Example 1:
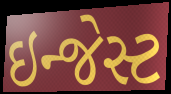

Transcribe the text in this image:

ઇન્જેસ્ટ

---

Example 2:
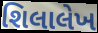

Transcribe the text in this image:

શિલાલેખ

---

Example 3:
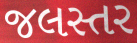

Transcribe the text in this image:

જલસ્તર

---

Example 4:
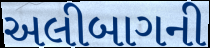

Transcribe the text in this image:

અલીબાગની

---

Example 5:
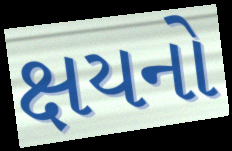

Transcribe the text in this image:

ક્ષયનો